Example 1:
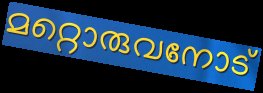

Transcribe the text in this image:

മറ്റൊരുവനോട്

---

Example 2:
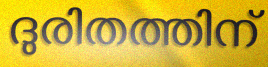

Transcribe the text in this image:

ദുരിതത്തിന്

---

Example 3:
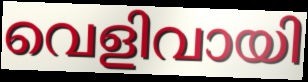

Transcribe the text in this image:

വെളിവായി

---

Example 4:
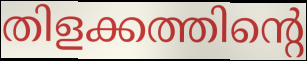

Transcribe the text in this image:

തിളക്കത്തിന്റെ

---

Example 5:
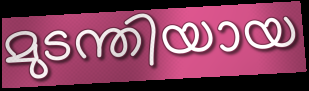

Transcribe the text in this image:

മുടന്തിയായ